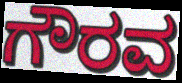
ಗೌರವ